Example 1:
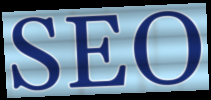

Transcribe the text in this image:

SEO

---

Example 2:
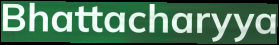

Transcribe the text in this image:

Bhattacharyya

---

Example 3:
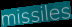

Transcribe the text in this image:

missiles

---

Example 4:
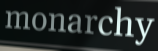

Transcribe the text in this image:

monarchy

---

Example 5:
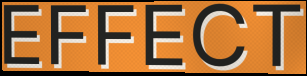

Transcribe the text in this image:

EFFECT